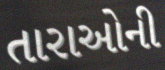
તારાઓની